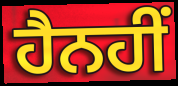
ਹੈਨਹੀਂ